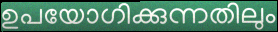
ഉപയോഗിക്കുന്നതിലും